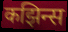
कझिन्स